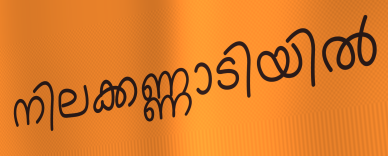
നിലക്കണ്ണാടിയിൽ